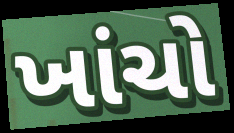
ખાંચો